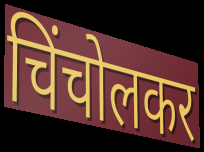
चिंचोलकर